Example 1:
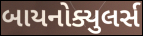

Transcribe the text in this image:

બાયનોક્યુલર્સ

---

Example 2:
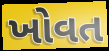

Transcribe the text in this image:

ખોવત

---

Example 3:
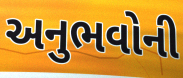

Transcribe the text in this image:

અનુભવોની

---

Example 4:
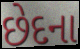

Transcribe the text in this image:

છેદના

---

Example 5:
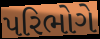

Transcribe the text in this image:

પરિભોગે